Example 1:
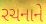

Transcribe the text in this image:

રચનાને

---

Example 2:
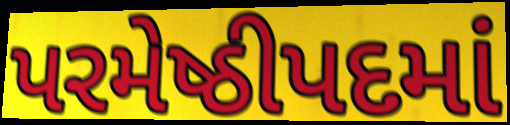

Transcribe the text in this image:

પરમેષ્ઠીપદમાં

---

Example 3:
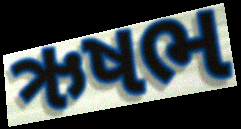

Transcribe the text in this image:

ઋષભ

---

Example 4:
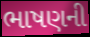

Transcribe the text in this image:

ભાષણની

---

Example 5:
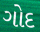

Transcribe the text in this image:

ગોદ